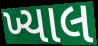
ખ્યાલ